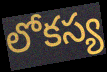
లోకస్య